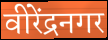
वीरेंद्रनगर